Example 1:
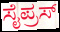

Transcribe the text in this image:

ಸೈಪ್ರಸ್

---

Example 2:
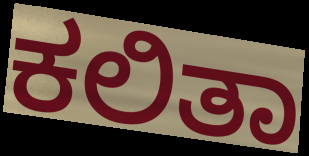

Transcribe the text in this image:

ಕಲಿತಾ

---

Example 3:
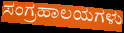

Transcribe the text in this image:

ಸಂಗ್ರಹಾಲಯಗಳು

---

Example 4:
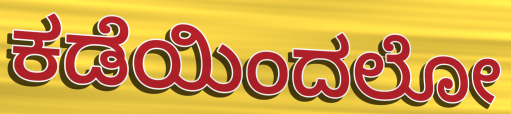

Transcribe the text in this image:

ಕಡೆಯಿಂದಲೋ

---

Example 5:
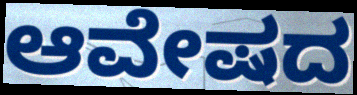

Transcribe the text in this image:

ಆವೇಷದ